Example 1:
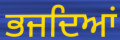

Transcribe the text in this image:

ਭਜਦਿਆਂ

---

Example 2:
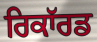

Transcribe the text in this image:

ਰਿਕਾੱਰਡ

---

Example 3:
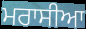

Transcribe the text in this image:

ਮਰਾਸੀਆ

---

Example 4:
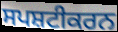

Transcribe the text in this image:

ਸਪਸ਼ਟੀਕਰਨ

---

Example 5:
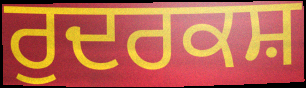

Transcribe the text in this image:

ਰੁਦਰਕਸ਼